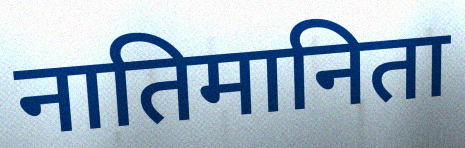
नातिमानिता